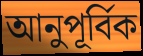
আনুপূর্বিক